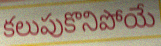
కలుపుకొనిపోయే